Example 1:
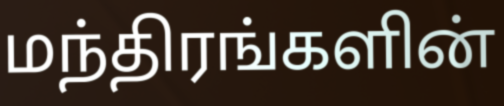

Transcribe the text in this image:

மந்திரங்களின்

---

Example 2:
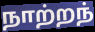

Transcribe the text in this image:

நாற்றந்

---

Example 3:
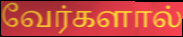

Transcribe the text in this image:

வேர்களால்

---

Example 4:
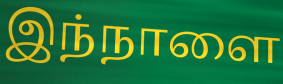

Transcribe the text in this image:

இந்நாளை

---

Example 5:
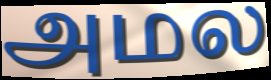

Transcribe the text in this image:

அமல